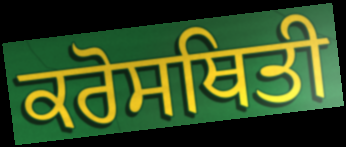
ਕਰੋਸਥਿਤੀ